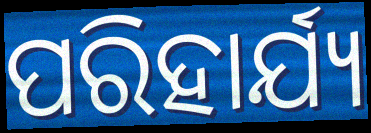
ପରିହାର୍ଯ୍ୟ